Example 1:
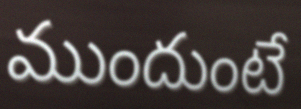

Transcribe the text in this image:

ముందుంటే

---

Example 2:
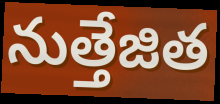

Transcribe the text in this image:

నుత్తేజిత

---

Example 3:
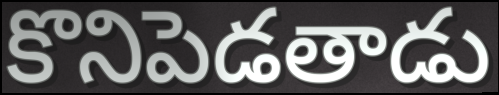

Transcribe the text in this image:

కొనిపెడతాడు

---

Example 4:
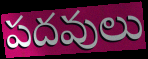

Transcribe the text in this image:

పదవులు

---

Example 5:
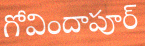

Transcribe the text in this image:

గోవిందాపూర్